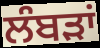
ਲੰਬੜਾਂ